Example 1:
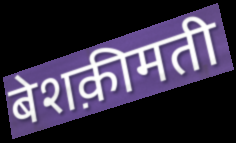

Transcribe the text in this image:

बेशक़ीमती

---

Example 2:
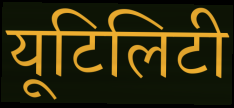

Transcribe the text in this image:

यूटिलिटी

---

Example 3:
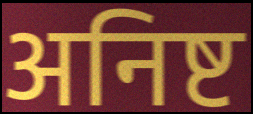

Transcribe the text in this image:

अनिष्ट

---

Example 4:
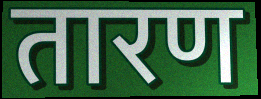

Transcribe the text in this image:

तारण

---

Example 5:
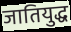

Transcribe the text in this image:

जातियुद्ध